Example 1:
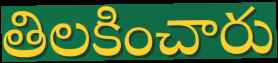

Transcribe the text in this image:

తిలకించారు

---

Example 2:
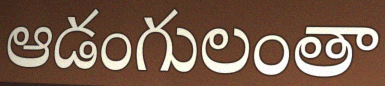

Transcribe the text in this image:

ఆడంగులంతా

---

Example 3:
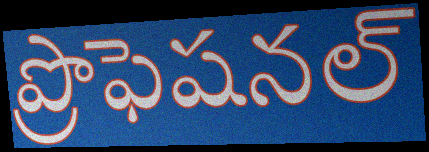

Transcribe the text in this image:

ప్రొఫెషనల్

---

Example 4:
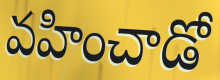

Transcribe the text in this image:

వహించాడో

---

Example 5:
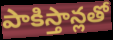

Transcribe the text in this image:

పాకిస్తాన్లతో